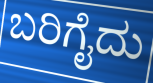
ಬರಿಗೈದು